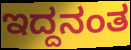
ಇದ್ದನಂತ